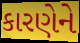
કારણેને